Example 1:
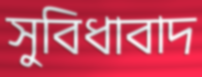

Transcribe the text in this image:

সুবিধাবাদ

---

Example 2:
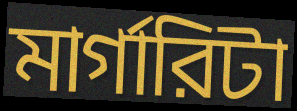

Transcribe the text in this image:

মার্গারিটা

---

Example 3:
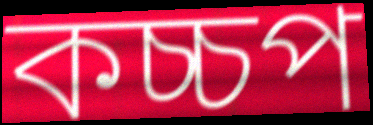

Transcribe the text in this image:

কচ্চপ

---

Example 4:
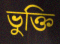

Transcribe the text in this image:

ভুক্তি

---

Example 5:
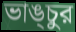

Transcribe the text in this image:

ভাঙ্চুর